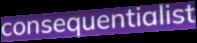
consequentialist